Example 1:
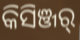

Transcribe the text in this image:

କିସିଞ୍ଜର୍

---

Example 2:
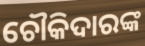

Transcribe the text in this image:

ଚୌକିଦାରଙ୍କ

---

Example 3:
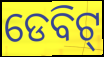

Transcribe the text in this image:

ଡେବିଟ୍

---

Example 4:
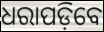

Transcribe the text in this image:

ଧରାପଡ଼ିବେ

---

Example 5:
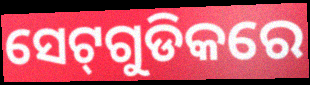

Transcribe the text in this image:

ସେଟ୍‌ଗୁଡିକରେ